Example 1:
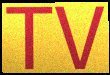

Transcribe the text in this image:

TV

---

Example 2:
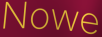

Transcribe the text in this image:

Nowe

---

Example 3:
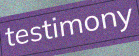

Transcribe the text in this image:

testimony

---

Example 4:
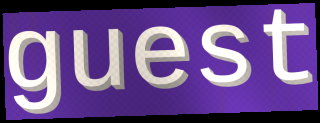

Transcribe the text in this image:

guest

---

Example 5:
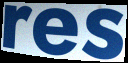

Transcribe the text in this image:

res